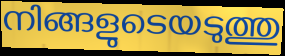
നിങ്ങളുടെയടുത്തു